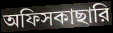
অফিসকাছারি